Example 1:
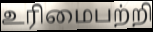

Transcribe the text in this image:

உரிமைபற்றி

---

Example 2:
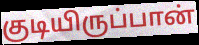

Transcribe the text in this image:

குடியிருப்பான்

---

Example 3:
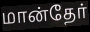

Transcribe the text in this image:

மான்தேர்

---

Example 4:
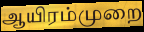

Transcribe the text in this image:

ஆயிரம்முறை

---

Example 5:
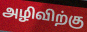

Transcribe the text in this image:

அழிவிற்கு